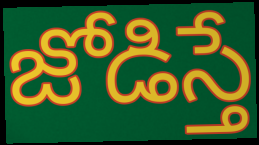
జోడిస్తే